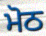
ਮੋਠ